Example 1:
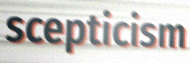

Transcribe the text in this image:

scepticism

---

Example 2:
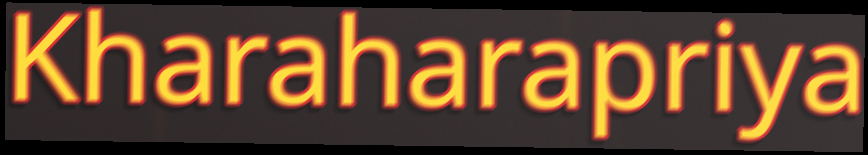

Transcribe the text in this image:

Kharaharapriya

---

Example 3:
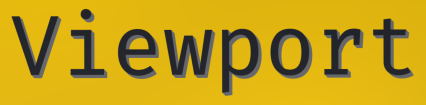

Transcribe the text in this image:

Viewport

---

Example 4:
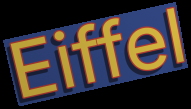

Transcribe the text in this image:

Eiffel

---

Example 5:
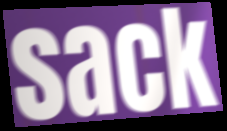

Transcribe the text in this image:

sack